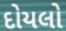
દોયલો